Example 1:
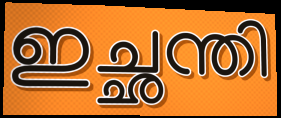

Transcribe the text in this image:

ഇച്ഛന്തി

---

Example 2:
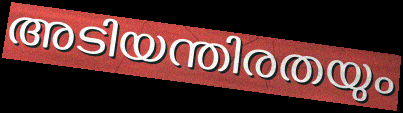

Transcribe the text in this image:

അടിയന്തിരതയും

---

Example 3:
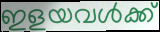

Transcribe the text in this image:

ഇളയവൾക്ക്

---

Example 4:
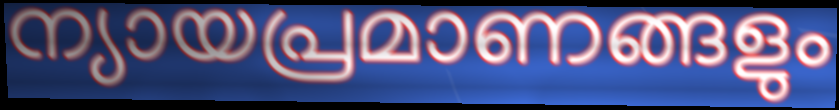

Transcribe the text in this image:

ന്യായപ്രമാണങ്ങളും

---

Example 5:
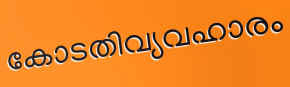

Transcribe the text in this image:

കോടതിവ്യവഹാരം